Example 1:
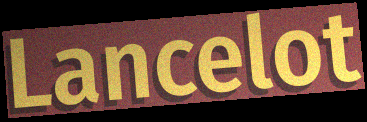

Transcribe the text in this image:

Lancelot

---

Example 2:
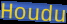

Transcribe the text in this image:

Houdu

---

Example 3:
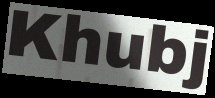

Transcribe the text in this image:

Khubj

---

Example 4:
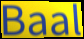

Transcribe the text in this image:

Baal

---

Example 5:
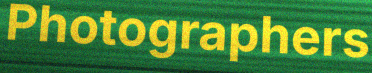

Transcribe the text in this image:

Photographers